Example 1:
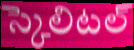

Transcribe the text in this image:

స్కెలిటల్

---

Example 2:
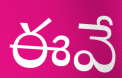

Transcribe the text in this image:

ఈవే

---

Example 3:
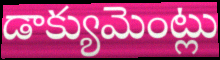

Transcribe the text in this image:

డాక్యుమెంట్లు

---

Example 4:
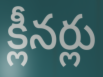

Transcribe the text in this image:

క్లీనర్లు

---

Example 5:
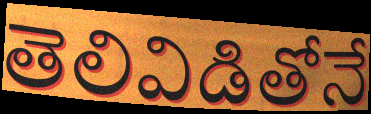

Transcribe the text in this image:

తెలివిడితోనే